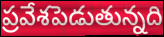
ప్రవేశపెడుతున్నది